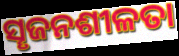
ସୄଜନଶୀଳତା